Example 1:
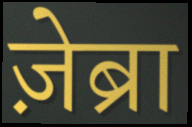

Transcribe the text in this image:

ज़ेब्रा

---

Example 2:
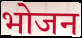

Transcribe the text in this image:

भोजन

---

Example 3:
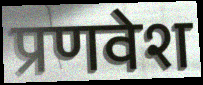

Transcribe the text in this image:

प्रणवेश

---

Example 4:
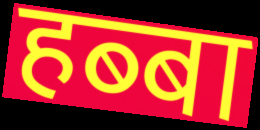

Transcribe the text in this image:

हब्‍बा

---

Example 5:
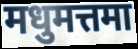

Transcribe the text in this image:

मधुमत्तमा